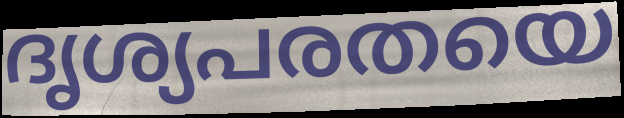
ദൃശ്യപരതയെ